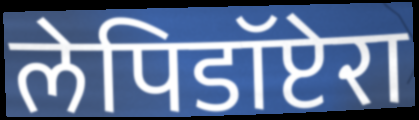
लेपिडॉप्टेरा